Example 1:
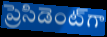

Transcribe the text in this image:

ప్రెసిడెంట్‌గా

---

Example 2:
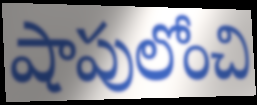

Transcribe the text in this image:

షాపులోంచి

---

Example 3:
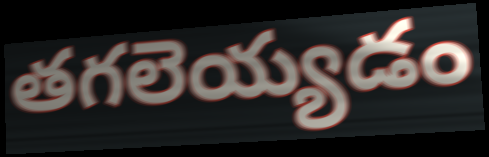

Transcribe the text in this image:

తగలెయ్యడం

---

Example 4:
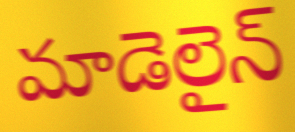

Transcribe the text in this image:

మాడెలైన్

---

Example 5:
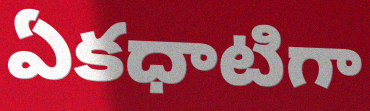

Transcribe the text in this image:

ఏకధాటిగా